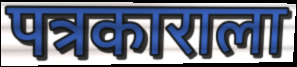
पत्रकाराला